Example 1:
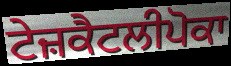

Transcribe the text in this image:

ਟੇਜ਼ਕੈਟਲੀਪੋਕਾ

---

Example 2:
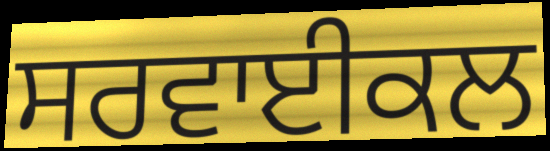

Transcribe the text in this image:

ਸਰਵਾਈਕਲ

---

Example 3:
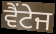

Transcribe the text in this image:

ਵੈਂਟੇਜ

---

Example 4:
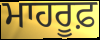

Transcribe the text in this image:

ਮਾਹਰੂਫ਼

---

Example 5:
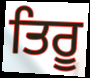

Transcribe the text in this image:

ਤਿਰੂ